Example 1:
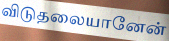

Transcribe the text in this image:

விடுதலையானேன்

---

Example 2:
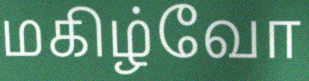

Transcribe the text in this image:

மகிழ்வோ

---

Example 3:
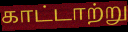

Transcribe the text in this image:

காட்டாற்று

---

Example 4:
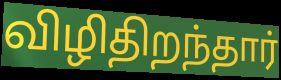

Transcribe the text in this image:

விழிதிறந்தார்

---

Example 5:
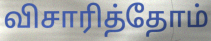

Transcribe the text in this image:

விசாரித்தோம்